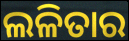
ଲଳିତାର